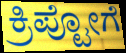
ಕ್ರಿಪ್ಟೋಗೆ